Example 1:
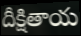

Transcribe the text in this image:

దీక్షితాయ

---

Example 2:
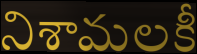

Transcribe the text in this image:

నిశామలకీ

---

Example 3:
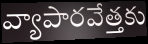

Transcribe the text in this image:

వ్యాపారవేత్తకు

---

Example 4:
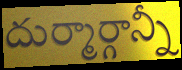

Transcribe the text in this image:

దుర్మార్గాన్నీ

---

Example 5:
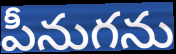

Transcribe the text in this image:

పీనుగను